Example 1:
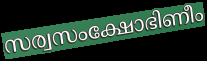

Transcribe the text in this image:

സര്വസംക്ഷോഭിണീം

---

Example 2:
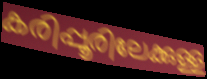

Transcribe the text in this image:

കരിപ്പൂരിലേക്കുള്ള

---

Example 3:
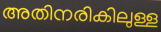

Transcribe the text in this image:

അതിനരികിലുള്ള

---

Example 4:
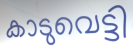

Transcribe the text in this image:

കാടുവെട്ടി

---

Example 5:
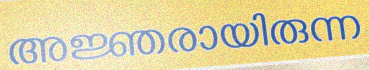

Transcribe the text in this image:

അജ്ഞരായിരുന്ന